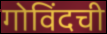
गोविंदची